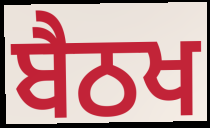
ਬੈਠਖ